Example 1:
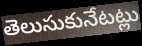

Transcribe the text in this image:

తెలుసుకునేటట్లు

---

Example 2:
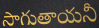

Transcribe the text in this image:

సాగుతాయనీ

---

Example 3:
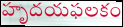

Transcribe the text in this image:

హృదయఫలకం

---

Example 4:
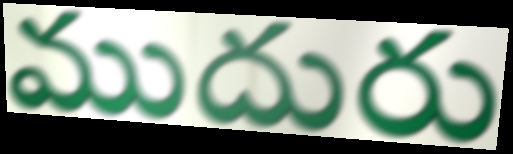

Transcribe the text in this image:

ముదురు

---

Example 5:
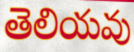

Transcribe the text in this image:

తెలియవు